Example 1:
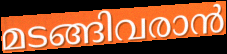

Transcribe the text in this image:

മടങ്ങിവരാൻ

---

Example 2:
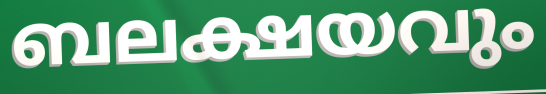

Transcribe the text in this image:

ബലക്ഷയവും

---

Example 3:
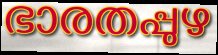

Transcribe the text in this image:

ഭാരതപ്പുഴ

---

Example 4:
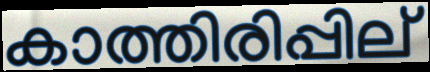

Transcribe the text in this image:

കാത്തിരിപ്പില്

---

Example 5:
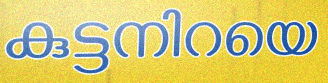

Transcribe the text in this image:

കുട്ടനിറയെ